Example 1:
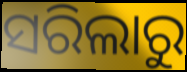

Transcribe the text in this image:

ସରିଲାରୁ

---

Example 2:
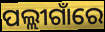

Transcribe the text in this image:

ପଲ୍ଲୀଗାଁରେ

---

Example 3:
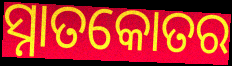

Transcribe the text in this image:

ସ୍ନାତକୋତର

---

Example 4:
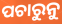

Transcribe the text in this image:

ପଚାରୁନୁ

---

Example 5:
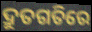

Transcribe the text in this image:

ଦ୍ରୁତଗତିରେ